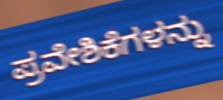
ಪ್ರವೇಶಿಕೆಗಳನ್ನು